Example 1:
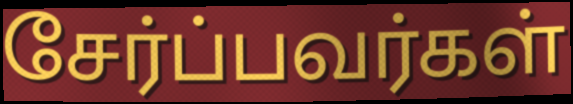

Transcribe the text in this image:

சேர்ப்பவர்கள்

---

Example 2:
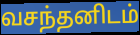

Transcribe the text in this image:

வசந்தனிடம்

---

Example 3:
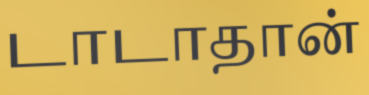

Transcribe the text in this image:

டாடாதான்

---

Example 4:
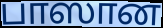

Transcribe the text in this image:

பாஸான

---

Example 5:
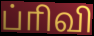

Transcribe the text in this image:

ப்ரிவி